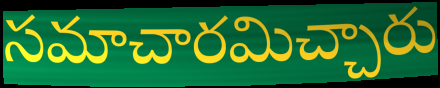
సమాచారమిచ్చారు